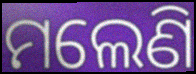
ମଲେଣି